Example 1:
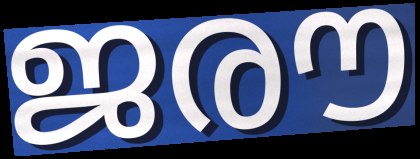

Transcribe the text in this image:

ജരൗ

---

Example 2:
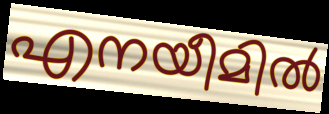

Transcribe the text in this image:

എനയീമിൽ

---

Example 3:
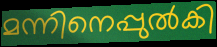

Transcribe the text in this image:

മന്നിനെപ്പുൽകി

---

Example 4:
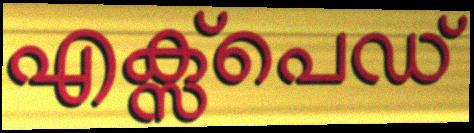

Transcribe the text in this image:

എക്സ്പെഡ്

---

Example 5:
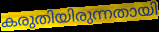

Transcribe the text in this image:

കരുതിയിരുന്നതായി